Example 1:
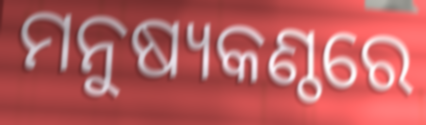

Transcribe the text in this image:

ମନୁଷ୍ୟକଣ୍ଠରେ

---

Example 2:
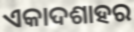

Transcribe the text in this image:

ଏକାଦଶାହର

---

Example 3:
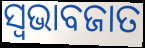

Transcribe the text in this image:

ସ୍ୱଭାବଜାତ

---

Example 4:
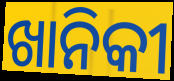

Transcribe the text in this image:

ଖାନିକୀ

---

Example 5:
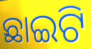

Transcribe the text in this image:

ଛାଇଟି